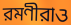
রমণীরাও